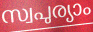
സ്വപുര്യാം